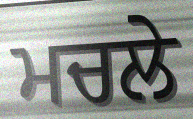
ਮਚਲੇ